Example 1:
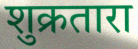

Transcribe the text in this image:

शुक्रतारा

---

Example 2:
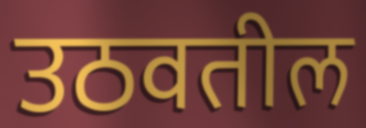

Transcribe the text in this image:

उठवतील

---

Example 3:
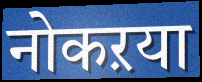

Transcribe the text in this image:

नोकऱया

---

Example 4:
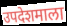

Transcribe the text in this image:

उपदेशमाला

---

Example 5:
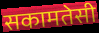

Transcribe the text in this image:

सकामतेसी